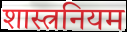
शास्त्रनियम